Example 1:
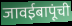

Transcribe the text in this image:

जावईबापूंची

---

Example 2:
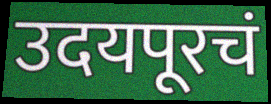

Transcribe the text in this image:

उदयपूरचं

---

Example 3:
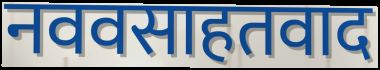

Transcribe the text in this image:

नववसाहतवाद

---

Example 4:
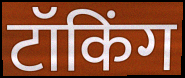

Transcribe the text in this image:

टॉकिंग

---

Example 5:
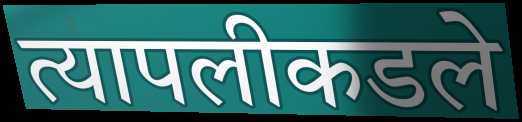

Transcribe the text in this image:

त्यापलीकडले